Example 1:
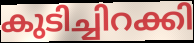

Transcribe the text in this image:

കുടിച്ചിറക്കി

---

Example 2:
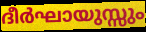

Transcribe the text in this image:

ദീർഘായുസ്സും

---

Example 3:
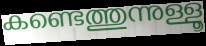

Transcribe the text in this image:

കണ്ടെത്തുന്നുള്ളൂ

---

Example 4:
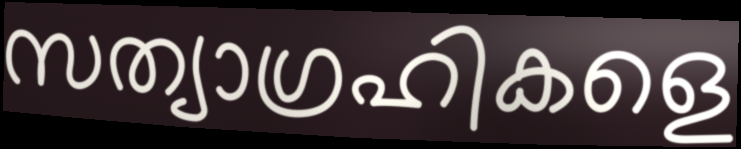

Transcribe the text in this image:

സത്യാഗ്രഹികളെ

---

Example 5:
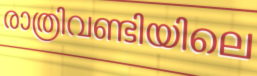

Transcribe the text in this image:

രാത്രിവണ്ടിയിലെ